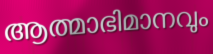
ആത്മാഭിമാനവും